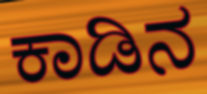
ಕಾಡಿನ